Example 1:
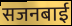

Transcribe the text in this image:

सजनबाई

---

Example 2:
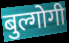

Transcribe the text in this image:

बुल्गोगी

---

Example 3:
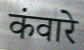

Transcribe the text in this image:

कंवारे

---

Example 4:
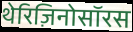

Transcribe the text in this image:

थेरिज़िनोसॉरस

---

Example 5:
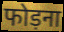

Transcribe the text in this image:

फोड़ना